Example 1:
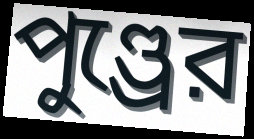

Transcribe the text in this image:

পুণ্ড্রের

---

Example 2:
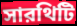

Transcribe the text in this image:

সারথিটি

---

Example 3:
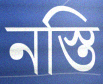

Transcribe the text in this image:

নস্তি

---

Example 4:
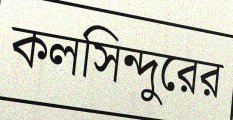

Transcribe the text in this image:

কলসিন্দুরের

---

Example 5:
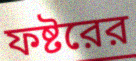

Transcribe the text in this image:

ফষ্টরের